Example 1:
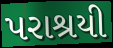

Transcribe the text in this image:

પરાશ્રયી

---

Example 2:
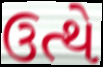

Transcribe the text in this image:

ઉત્થે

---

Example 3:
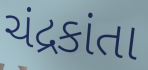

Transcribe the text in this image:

ચંદ્રકાંતા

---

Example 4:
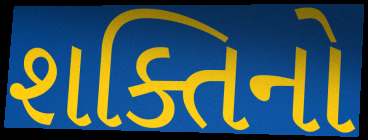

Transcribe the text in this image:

શક્તિનો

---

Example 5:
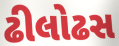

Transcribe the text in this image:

ઢીલોઢસ